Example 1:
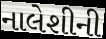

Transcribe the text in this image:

નાલેશીની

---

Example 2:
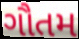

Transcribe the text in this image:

ગૌતમ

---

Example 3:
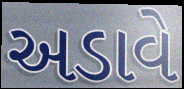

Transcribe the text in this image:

અડાવે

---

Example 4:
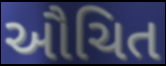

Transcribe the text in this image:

ઔચિત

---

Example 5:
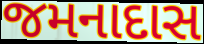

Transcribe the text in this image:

જમનાદાસ